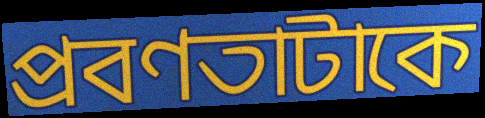
প্রবণতাটাকে